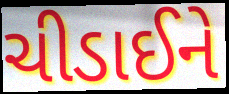
ચીડાઈને